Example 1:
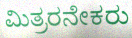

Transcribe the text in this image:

ಮಿತ್ರರನೇಕರು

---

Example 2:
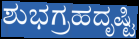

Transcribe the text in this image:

ಶುಭಗ್ರಹದೃಷ್ಟಿ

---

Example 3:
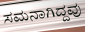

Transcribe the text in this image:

ಸಮನಾಗಿದ್ದವು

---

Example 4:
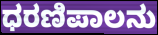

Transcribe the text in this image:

ಧರಣಿಪಾಲನು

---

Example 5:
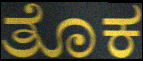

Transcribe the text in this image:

ತೊಕ